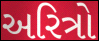
અરિત્રો